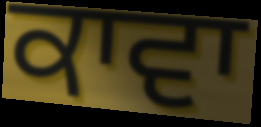
ਕਾਵਾ